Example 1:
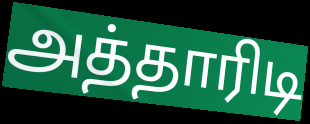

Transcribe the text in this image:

அத்தாரிடி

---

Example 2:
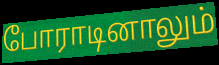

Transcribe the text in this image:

போராடினாலும்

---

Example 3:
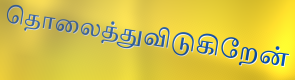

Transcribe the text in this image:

தொலைத்துவிடுகிறேன்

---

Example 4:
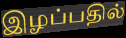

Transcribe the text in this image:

இழப்பதில்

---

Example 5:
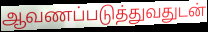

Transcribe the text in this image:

ஆவணப்படுத்துவதுடன்